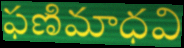
ఫణిమాధవి